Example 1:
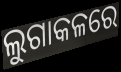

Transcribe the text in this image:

ଲୁଗାକଳରେ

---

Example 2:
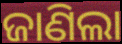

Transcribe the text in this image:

ଜାଣିଲା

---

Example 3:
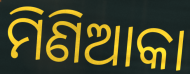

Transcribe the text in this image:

ମିଣିଆକା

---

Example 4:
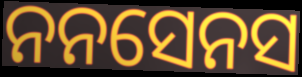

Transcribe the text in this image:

ନନସେନସ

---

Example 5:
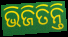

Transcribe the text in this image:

ଭିଜିତିନ୍ତି